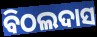
ବିଠଲଦାସ